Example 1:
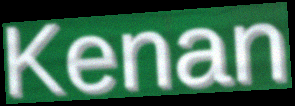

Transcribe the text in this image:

Kenan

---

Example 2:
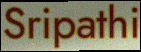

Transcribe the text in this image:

Sripathi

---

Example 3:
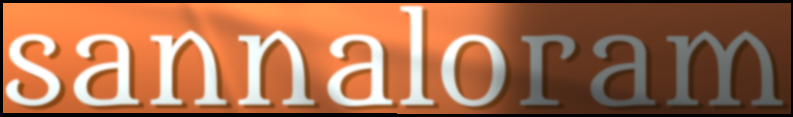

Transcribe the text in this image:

sannaloram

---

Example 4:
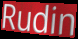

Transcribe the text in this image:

Rudin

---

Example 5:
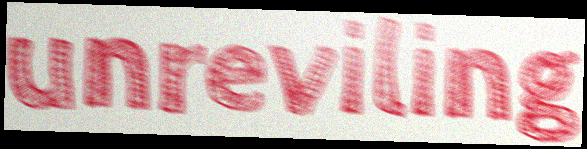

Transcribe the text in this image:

unreviling